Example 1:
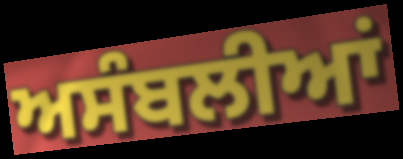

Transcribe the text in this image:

ਅਸੰਬਲੀਆਂ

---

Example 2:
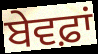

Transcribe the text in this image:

ਬੇਵਫ਼ਾਂ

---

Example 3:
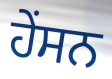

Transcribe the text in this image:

ਹੇਂਸਨ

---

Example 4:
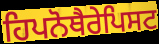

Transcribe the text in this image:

ਹਿਪਨੋਥੈਰੇਪਿਸਟ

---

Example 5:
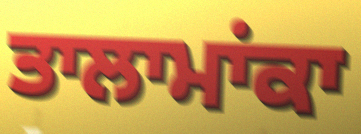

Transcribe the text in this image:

ਤਾਲਾਮਾਂਕਾ